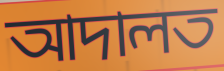
আদালত